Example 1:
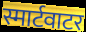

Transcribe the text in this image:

स्मार्टवाटर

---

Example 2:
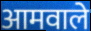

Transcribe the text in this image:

आमवाले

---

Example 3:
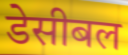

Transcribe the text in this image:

डेसीबल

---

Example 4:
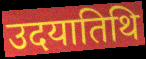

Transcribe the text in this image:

उदयातिथि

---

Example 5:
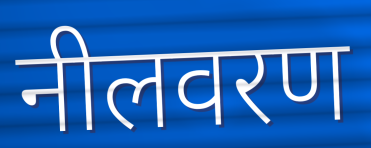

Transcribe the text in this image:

नीलवरण